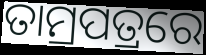
ତାମ୍ରପତ୍ରରେ